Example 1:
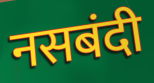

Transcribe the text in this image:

नसबंदी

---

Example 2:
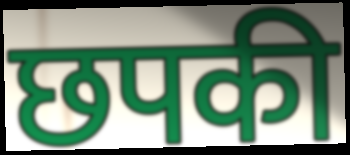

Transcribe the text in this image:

छपकी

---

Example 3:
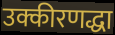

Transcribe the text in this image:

उक्कीरणद्धा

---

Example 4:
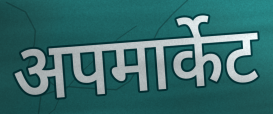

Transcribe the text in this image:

अपमार्केट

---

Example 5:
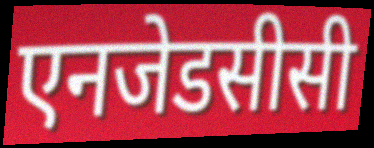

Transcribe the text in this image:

एनजेडसीसी